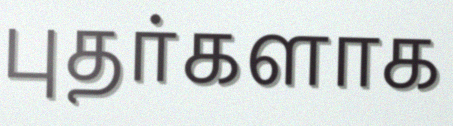
புதர்களாக